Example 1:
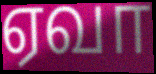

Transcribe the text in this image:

ஏவா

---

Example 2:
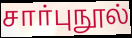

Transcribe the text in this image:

சார்புநூல்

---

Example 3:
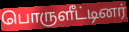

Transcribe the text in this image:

பொருளீட்டினர்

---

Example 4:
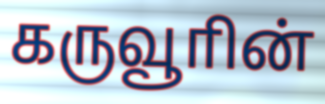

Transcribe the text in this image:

கருவூரின்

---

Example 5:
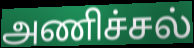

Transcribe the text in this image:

அணிச்சல்